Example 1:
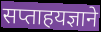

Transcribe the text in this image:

सप्ताहयज्ञाने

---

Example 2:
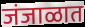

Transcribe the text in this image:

जंजाळात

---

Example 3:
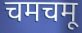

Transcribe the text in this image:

चमचमू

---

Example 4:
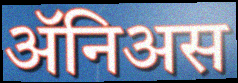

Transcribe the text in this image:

ॲनिअस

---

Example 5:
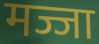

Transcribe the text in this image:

मज्जा